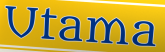
Utama